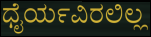
ಧೈರ್ಯವಿರಲಿಲ್ಲ